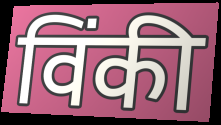
विंकी